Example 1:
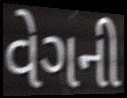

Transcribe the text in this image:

વેગની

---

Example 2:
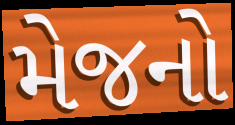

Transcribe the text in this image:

મેજનો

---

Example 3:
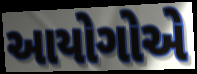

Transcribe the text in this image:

આયોગોએ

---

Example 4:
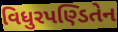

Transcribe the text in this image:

વિધુરપણ્ડિતેન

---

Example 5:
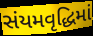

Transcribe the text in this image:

સંયમવૃદ્ધિમાં